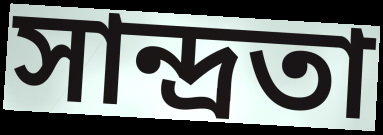
সান্দ্রতা